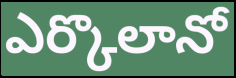
ఎర్కొలానో